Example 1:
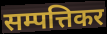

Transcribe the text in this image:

सम्पत्तिकर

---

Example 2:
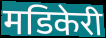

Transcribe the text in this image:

मडिकेरी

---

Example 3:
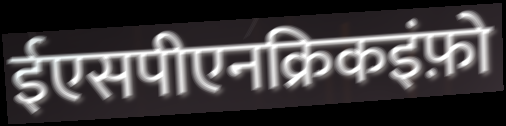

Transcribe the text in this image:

ईएसपीएनक्रिकइंफ़ो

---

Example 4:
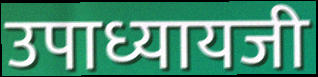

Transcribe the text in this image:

उपाध्यायजी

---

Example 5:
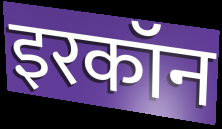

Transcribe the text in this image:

इरकॉन